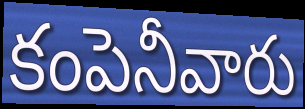
కంపెనీవారు